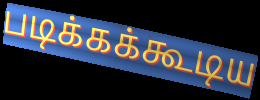
படிக்கக்கூடிய